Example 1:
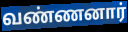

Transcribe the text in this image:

வண்ணனார்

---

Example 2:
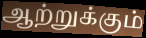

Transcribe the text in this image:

ஆற்றுக்கும்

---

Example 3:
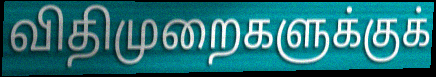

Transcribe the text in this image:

விதிமுறைகளுக்குக்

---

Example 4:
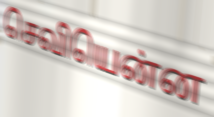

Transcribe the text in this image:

செவியென்ன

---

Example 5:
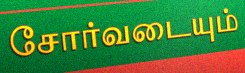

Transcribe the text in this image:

சோர்வடையும்